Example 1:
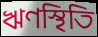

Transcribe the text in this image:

ঋণস্থিতি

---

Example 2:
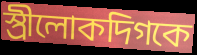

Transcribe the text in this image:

স্ত্রীলোকদিগকে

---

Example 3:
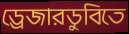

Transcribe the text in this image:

ড্রেজারডুবিতে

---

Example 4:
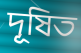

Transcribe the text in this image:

দূষিত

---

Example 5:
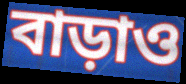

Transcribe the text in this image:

বাড়াও